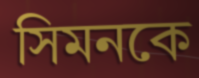
সিমনকে